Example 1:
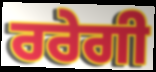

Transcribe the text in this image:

ਰਰੇਗੀ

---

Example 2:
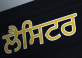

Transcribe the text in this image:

ਲੈਸਿਟਰ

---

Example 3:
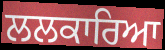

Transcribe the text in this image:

ਲਲਕਾਰਿਆ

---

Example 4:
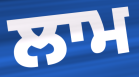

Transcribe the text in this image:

ਲਾਮ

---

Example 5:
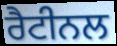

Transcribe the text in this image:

ਰੈਟੀਨਲ